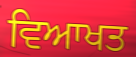
ਵਿਆਖਤ